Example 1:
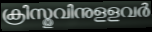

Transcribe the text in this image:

ക്രിസ്തുവിനുളളവർ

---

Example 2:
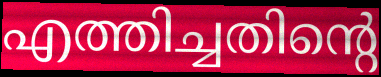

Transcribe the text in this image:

എത്തിച്ചതിന്റെ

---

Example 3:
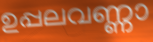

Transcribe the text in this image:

ഉപ്പലവണ്ണാ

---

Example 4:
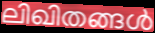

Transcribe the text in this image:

ലിഖിതങ്ങൾ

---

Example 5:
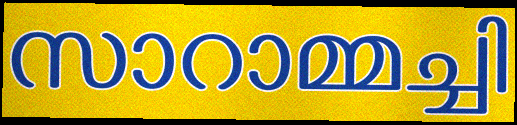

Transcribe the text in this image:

സാറാമ്മച്ചി